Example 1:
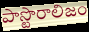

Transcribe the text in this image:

పాస్టొరాలిజం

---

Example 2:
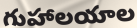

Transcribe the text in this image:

గుహాలయాల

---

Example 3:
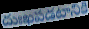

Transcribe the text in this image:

దుఃఖపడటానికి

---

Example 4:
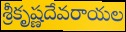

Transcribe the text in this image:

శ్రీకృష్ణదేవరాయల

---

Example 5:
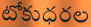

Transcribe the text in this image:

టోకుధరల